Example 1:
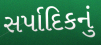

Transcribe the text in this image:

સર્પાદિકનું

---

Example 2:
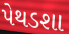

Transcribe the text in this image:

પેથડશા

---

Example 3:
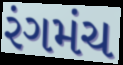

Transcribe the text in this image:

રંગમંચ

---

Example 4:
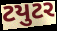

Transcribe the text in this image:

ટયુટર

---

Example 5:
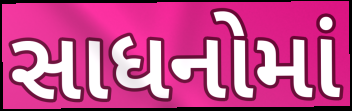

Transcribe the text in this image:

સાધનોમાં